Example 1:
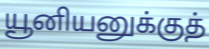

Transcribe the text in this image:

யூனியனுக்குத்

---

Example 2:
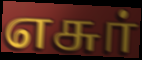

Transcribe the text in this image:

எசுர்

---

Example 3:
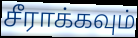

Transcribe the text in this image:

சீராக்கவும்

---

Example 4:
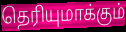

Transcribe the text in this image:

தெரியுமாக்கும்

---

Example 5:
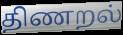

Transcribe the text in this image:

திணறல்